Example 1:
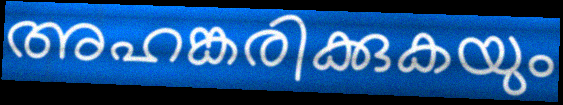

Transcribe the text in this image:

അഹങ്കരിക്കുകയും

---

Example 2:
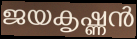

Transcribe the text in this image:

ജയകൃഷ്ണൻ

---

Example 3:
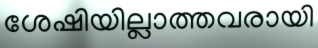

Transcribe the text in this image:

ശേഷിയില്ലാത്തവരായി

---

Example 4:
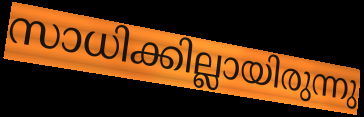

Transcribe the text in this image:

സാധിക്കില്ലായിരുന്നു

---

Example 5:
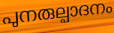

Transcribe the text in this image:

പുനരുല്പാദനം